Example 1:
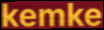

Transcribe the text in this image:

kemke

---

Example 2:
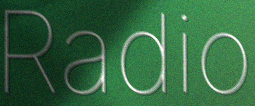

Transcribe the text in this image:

Radio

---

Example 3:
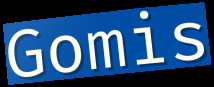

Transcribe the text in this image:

Gomis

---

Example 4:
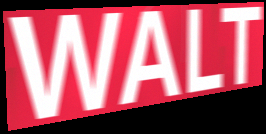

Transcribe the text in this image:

WALT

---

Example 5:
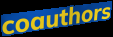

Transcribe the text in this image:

coauthors